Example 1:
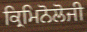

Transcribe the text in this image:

ਕ੍ਰਿਮਿਨੋਲੋਜੀ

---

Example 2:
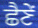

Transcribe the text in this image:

ਛੈਣੇਂ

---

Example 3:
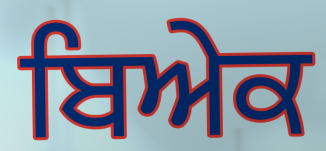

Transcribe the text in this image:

ਬਿਅੇਕ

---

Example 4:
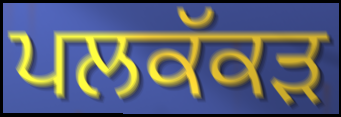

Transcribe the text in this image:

ਪਲਕੱਕੜ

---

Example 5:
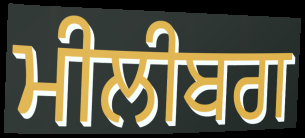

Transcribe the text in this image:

ਮੀਲੀਬਗ